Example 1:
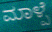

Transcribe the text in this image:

ಮಾಳ್ಪೆ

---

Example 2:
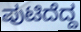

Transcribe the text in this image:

ಪುಟಿದೆದ್ದ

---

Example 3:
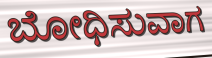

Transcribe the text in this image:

ಬೋಧಿಸುವಾಗ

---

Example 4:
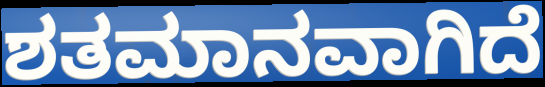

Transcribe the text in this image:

ಶತಮಾನವಾಗಿದೆ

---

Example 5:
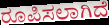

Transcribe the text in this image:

ರೂಪಿಸಲಾಗಿದೆ